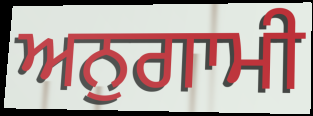
ਅਨੁਗਾਮੀ